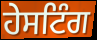
ਹੇਸਟਿੰਗ